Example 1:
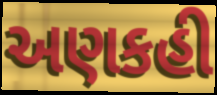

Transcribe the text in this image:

અણકહી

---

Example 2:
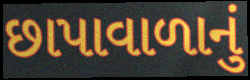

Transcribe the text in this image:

છાપાવાળાનું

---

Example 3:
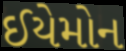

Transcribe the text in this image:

ઈયેમોન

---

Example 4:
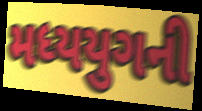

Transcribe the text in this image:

મધ્યયુગની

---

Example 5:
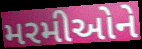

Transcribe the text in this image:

મરમીઓને